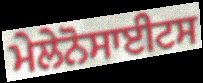
ਮੇਲੇਨੋਸਾਈਟਸ